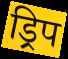
ड्रिप